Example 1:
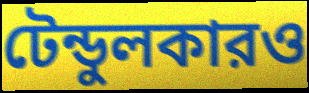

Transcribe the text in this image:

টেন্ডুলকারও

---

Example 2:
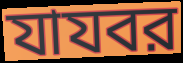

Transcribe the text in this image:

যাযবর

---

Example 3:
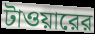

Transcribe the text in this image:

টাওয়ারের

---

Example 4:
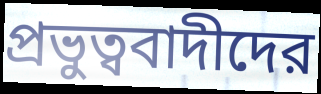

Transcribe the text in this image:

প্রভুত্ববাদীদের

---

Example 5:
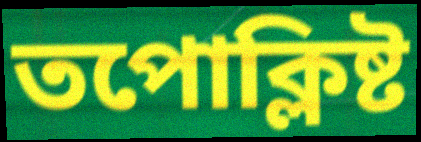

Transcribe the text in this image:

তপোক্লিষ্ট